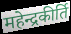
महेन्द्रकीर्ति